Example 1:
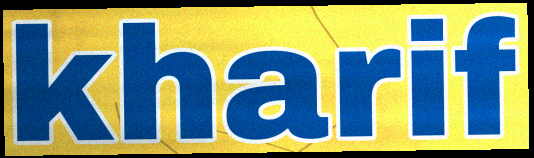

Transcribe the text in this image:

kharif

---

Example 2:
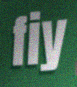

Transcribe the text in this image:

fiy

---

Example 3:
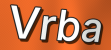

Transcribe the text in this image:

Vrba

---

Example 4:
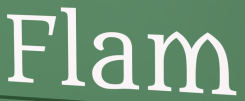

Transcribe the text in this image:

Flam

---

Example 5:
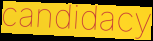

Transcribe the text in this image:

candidacy